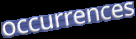
occurrences